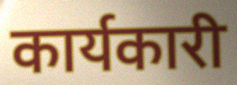
कार्यकारी